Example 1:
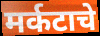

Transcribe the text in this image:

मर्कटाचे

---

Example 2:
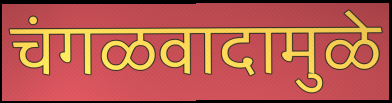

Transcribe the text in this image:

चंगळवादामुळे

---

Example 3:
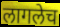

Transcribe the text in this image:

लागलेच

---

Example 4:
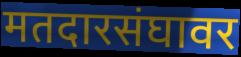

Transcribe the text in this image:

मतदारसंघावर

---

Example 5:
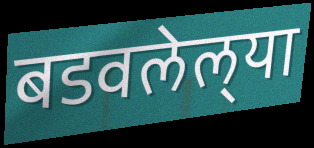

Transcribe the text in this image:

बडवलेल्या